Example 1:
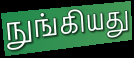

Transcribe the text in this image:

நுங்கியது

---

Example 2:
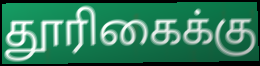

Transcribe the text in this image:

தூரிகைக்கு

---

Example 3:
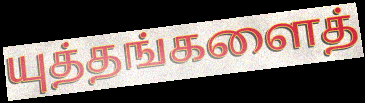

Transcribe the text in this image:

யுத்தங்களைத்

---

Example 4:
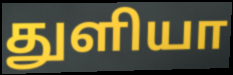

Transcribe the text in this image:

துளியா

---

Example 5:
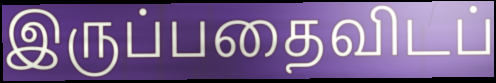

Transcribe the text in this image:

இருப்பதைவிடப்